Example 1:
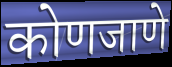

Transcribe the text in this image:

कोणजाणे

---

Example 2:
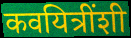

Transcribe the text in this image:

कवयित्रींशी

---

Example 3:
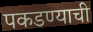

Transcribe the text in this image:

पकडण्याची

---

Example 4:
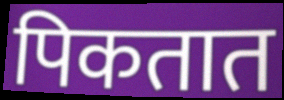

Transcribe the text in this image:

पिकतात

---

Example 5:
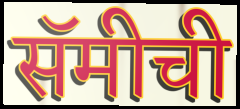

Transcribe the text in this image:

सॅमीची